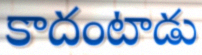
కాదంటాడు